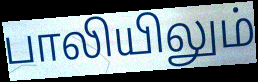
பாலியிலும்